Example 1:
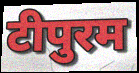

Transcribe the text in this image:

टीपुरम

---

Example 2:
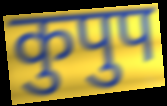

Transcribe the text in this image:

कुपुप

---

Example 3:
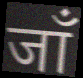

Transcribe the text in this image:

जाँ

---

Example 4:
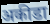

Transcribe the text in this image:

अकीडा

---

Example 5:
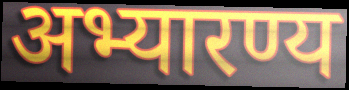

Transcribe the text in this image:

अभ्यारण्य